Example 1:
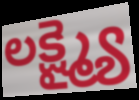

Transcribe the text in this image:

లక్ష్మ్యై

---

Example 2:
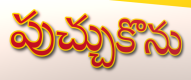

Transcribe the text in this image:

పుచ్చుకొను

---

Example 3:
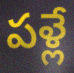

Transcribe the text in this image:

పళ్లే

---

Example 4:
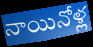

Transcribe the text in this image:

నాయినోళ్ల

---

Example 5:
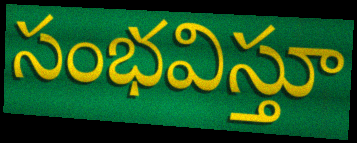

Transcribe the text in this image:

సంభవిస్తూ